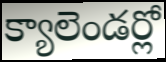
క్యాలెండర్లో